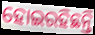
ହୋଇରହିଛନ୍ତି